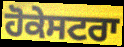
ਹੋਕੇਸਟਰਾ